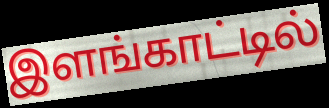
இளங்காட்டில்